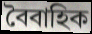
বৈবাহিক